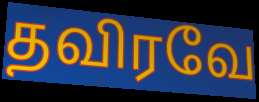
தவிரவே